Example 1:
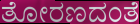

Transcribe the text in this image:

ತೋರಣದಂತೆ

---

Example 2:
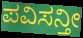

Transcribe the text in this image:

ಪವಿಸನ್ತೀ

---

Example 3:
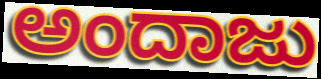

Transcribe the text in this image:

ಅಂದಾಜು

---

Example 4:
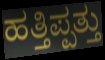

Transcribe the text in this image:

ಹತ್ತಿಪ್ಪತ್ತು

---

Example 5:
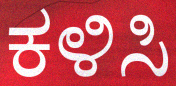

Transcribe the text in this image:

ಕಳಿಸಿ